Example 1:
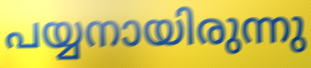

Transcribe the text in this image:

പയ്യനായിരുന്നു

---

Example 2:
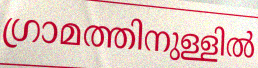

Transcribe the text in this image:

ഗ്രാമത്തിനുള്ളിൽ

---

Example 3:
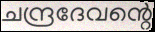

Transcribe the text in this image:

ചന്ദ്രദേവന്റെ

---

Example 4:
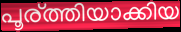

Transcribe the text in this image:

പൂര്ത്തിയാക്കിയ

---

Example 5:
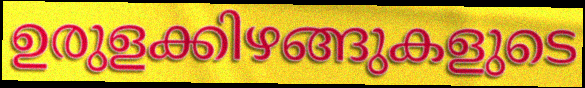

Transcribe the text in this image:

ഉരുളക്കിഴങ്ങുകളുടെ